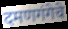
दमणगंगेचे